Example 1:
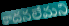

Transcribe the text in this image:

కాదనలేమని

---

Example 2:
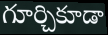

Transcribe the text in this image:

గూర్చికూడా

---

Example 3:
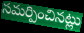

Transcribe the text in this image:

సమర్పించినట్లు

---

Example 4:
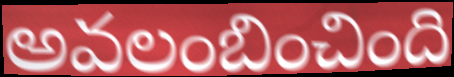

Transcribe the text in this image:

అవలంబించింది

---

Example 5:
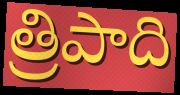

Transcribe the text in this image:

త్రిపాది